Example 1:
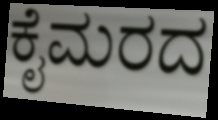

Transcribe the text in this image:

ಕೈಮರದ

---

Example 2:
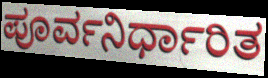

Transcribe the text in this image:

ಪೂರ್ವನಿರ್ಧಾರಿತ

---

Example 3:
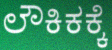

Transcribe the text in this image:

ಲೌಕಿಕಕ್ಕೆ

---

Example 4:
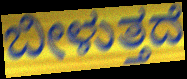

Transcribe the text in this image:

ಬೀಳುತ್ತದೆ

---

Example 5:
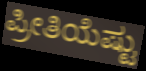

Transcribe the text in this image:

ಪ್ರೀತಿಯೆಷ್ಟು